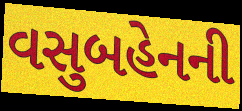
વસુબહેનની